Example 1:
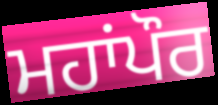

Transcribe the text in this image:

ਮਹਾਂਪੌਰ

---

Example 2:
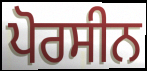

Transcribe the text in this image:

ਪੋਰਸੀਨ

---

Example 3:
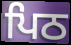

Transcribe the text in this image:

ਪਿਠ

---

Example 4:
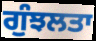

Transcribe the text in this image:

ਗੁੰਝਲਤਾ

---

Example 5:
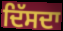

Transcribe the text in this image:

ਦਿੱਸਦਾ